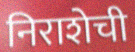
निराशेची